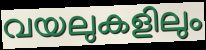
വയലുകളിലും